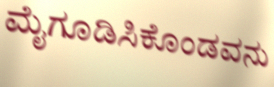
ಮೈಗೂಡಿಸಿಕೊಂಡವನು